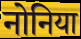
नोनिया